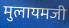
मुलायमजी